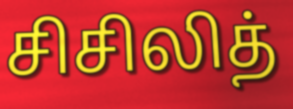
சிசிலித்